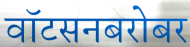
वॉटसनबरोबर